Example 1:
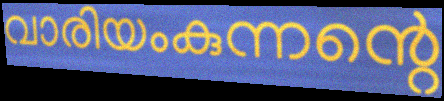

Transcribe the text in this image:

വാരിയംകുന്നന്റെ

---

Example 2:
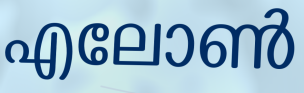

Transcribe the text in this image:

എലോൺ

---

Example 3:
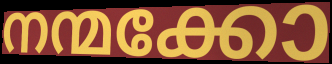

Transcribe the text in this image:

നന്മക്കോ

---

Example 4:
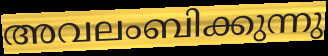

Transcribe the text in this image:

അവലംബിക്കുന്നു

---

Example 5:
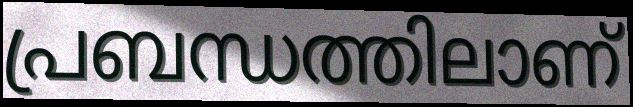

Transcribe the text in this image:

പ്രബന്ധത്തിലാണ്